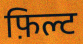
फ़िल्ट